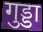
गुड्डा